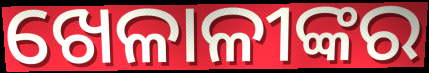
ଖେଳାଳୀଙ୍କର